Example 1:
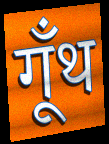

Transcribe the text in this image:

गूँथ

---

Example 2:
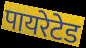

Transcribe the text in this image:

पायरेटेड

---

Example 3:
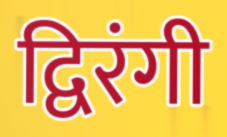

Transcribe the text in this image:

द्विरंगी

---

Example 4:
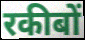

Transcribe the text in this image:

रकीबों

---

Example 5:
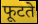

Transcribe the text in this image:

फूटते